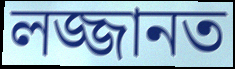
লজ্জানত